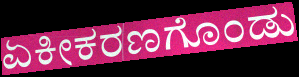
ಏಕೀಕರಣಗೊಂಡು